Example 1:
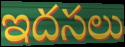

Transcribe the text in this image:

ఇదసలు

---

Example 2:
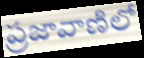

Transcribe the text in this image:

ప్రజావాణిలో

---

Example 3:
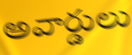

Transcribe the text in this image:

అవార్డులు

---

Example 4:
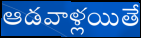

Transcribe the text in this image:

ఆడవాళ్లయితే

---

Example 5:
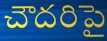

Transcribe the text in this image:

చౌదరిపై